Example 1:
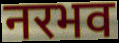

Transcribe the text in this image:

नरभव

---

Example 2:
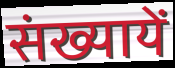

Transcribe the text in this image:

संख्यायें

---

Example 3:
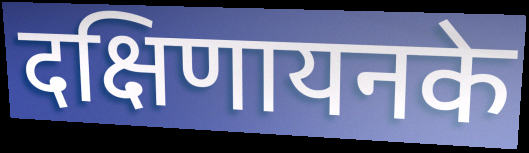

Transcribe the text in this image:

दक्षिणायनके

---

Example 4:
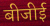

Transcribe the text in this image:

बीजीई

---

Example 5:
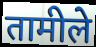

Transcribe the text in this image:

तामीले